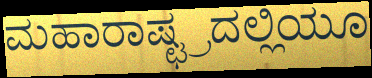
ಮಹಾರಾಷ್ಟ್ರದಲ್ಲಿಯೂ